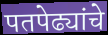
पतपेढ्यांचे